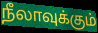
நீலாவுக்கும்